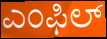
ಎಂಫಿಲ್